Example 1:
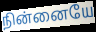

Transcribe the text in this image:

நின்னையே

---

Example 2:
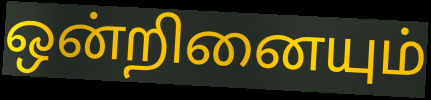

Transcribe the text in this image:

ஒன்றினையும்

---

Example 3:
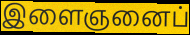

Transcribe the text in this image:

இளைஞனைப்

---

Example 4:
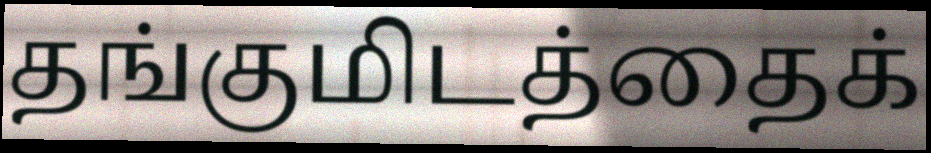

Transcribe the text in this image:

தங்குமிடத்தைக்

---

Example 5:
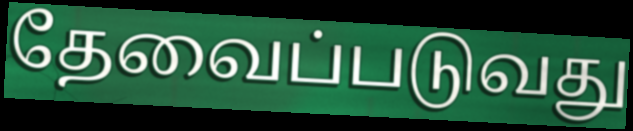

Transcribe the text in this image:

தேவைப்படுவது